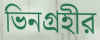
ভিনগ্রহীর